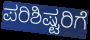
ಪರಿಶಿಷ್ಟರಿಗೆ